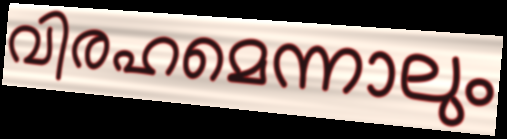
വിരഹമെന്നാലും